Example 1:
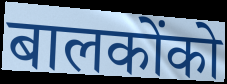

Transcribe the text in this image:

बालकोंको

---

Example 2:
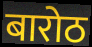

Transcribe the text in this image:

बारोठ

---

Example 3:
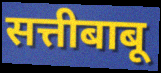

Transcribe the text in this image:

सत्तीबाबू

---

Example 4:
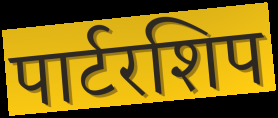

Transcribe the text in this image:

पार्टरशिप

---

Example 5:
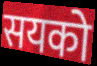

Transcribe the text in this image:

सयको